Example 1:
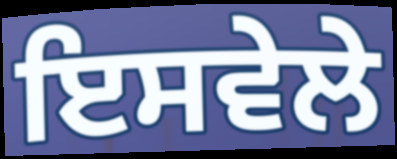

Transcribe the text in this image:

ਇਸਵੇਲੇ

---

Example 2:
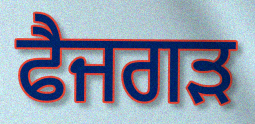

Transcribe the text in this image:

ਫੈਜਗੜ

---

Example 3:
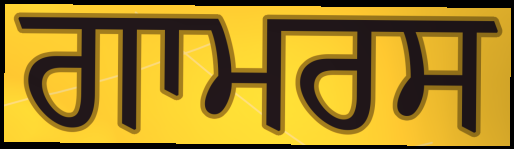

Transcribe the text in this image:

ਗਾਮਰਸ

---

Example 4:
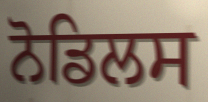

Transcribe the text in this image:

ਨੋਡਿਲਸ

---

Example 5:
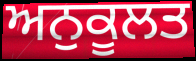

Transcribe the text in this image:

ਅਨੁਕੂਲਤ